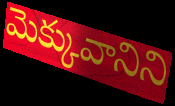
మెక్కువానిని